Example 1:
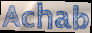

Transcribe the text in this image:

Achab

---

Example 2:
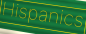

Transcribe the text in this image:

Hispanics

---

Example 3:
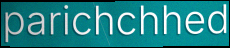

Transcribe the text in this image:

parichchhed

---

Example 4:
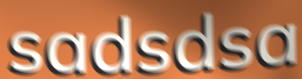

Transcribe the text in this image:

sadsdsa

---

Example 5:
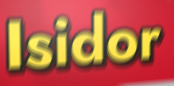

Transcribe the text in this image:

Isidor